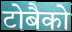
टोबैको